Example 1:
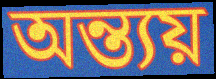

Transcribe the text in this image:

অন্ত্যয়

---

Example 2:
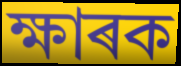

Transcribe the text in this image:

ক্ষাৰক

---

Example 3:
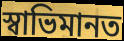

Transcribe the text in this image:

স্বাভিমানত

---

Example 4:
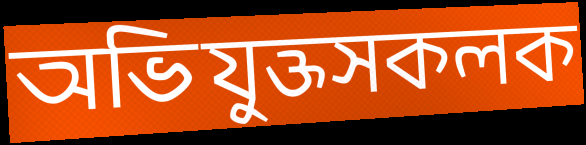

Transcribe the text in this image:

অভিযুক্তসকলক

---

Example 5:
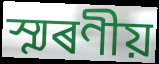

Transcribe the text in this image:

স্মৰণীয়